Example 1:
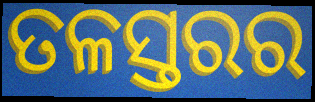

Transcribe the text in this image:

ତଳସ୍ତରର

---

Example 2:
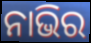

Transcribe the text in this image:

ନାଭିର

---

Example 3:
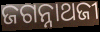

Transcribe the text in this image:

ଜଗନ୍ନାଥଜୀ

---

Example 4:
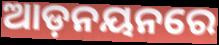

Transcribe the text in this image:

ଆଡ଼ନୟନରେ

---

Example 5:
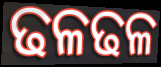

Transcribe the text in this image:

ଢଳଢଳ